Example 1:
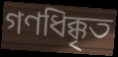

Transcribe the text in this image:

গণধিক্কৃত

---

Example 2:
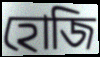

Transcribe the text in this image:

হোজি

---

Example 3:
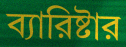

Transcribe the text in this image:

ব্যারিষ্টার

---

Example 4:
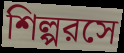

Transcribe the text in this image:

শিল্পরসে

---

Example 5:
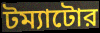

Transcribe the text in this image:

টম্যাটোর